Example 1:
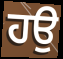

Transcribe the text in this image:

ਹਉ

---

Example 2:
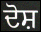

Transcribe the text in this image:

ਦੋਸ਼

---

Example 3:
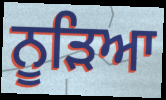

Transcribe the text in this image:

ਨੂੜਿਆ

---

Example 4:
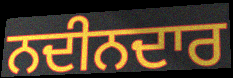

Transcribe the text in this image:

ਨਦੀਨਦਾਰ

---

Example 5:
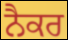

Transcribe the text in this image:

ਨੈਕਰ